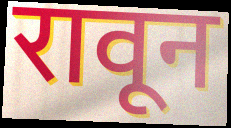
रावून